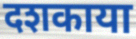
दशकाया